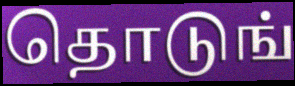
தொடுங்